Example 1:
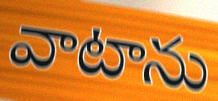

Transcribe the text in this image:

వాటాను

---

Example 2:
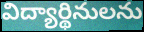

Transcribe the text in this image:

విద్యార్థినులను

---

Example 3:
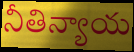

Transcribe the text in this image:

నీతిన్యాయ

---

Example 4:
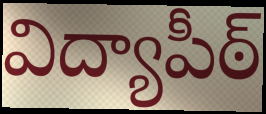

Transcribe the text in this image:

విద్యాపీఠ్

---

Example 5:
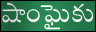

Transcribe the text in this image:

షాంఘైకు